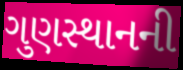
ગુણસ્થાનની